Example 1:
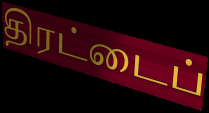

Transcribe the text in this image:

திரட்டைப்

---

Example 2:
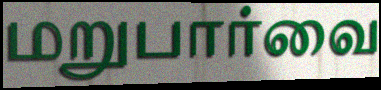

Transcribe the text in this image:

மறுபார்வை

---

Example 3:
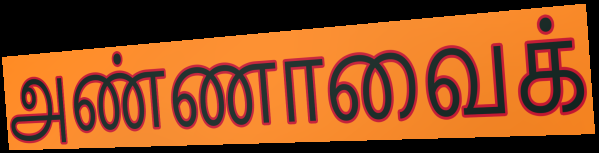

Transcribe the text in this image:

அண்ணாவைக்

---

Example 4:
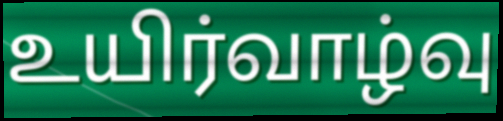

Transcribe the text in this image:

உயிர்வாழ்வு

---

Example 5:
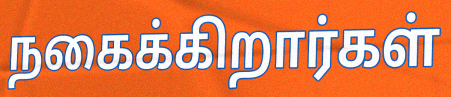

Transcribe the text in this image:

நகைக்கிறார்கள்